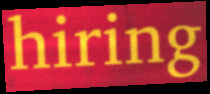
hiring